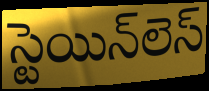
స్టెయిన్‌లెస్